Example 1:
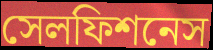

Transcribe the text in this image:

সেলফিশনেস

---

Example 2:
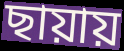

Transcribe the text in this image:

ছায়ায়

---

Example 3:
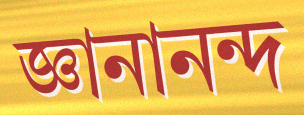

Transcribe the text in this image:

জ্ঞানানন্দ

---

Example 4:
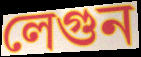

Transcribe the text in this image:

লেগুন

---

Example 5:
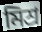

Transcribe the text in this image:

মিশ্র